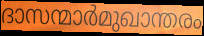
ദാസന്മാർമുഖാന്തരം